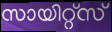
സായിറ്റ്സ്